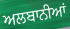
ਅਲਬਾਨੀਆਂ